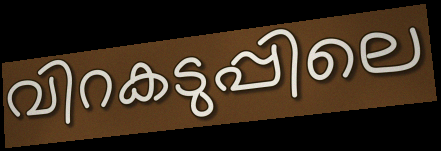
വിറകടുപ്പിലെ